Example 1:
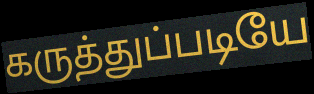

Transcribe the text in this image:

கருத்துப்படியே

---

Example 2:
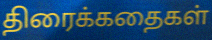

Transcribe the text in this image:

திரைக்கதைகள்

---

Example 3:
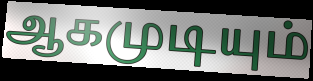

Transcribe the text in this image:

ஆகமுடியும்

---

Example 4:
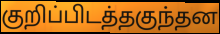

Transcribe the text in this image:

குறிப்பிடத்தகுந்தன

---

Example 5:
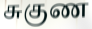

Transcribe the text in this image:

சுகுண